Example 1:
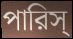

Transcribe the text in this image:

পারিস্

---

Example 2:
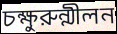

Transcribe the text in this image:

চক্ষুরুন্মীলন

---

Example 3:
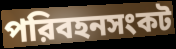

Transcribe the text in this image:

পরিবহনসংকট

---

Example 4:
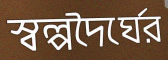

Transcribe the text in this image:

স্বল্পদৈর্ঘের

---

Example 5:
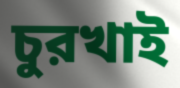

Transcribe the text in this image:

চুরখাই